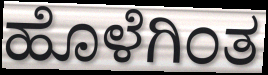
ಹೊಳೆಗಿಂತ